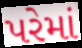
પરેમાં